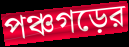
পঞ্চগড়ের